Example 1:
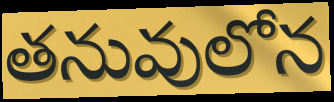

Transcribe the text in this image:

తనువులోన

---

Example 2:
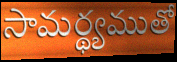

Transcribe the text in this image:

సామర్థ్యముతో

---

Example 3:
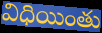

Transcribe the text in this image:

విధియింతు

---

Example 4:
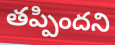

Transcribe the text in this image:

తప్పిందని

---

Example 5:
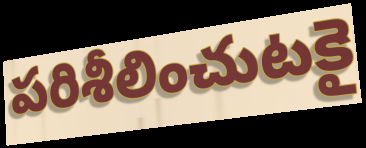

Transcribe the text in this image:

పరిశీలించుటకై